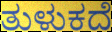
ತುಳುಕದೆ